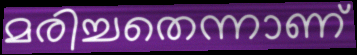
മരിച്ചതെന്നാണ്